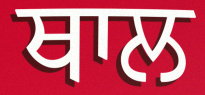
ਥਾਲ